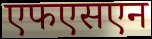
एफएसएन